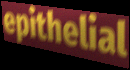
epithelial